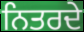
ਨਿਤਰਦੇ